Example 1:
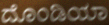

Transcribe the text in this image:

ದೊಂಡಿಯಾ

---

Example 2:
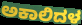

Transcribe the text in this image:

ಅಕಾಲಿದಳ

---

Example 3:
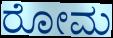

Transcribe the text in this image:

ರೋಮ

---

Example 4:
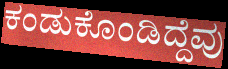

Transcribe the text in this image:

ಕಂಡುಕೊಂಡಿದ್ದೆವು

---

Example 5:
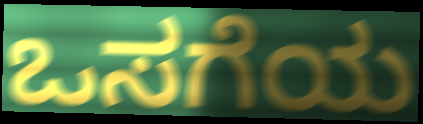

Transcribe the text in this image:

ಒಸಗೆಯ